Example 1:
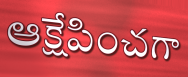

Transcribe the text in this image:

ఆక్షేపించగా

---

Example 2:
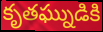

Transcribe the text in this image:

కృతఘ్నుడికి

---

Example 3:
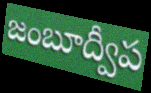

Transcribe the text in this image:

జంబూద్వీప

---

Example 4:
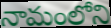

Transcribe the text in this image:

నామంలోని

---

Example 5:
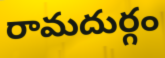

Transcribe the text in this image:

రామదుర్గం